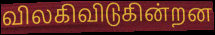
விலகிவிடுகின்றன